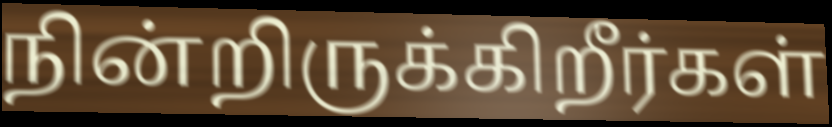
நின்றிருக்கிறீர்கள்